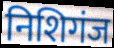
निशिगंज